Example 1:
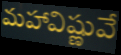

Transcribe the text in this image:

మహావిష్ణువే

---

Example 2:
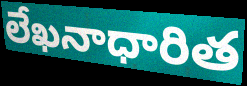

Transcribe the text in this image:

లేఖనాధారిత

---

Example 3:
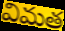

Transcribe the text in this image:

విమత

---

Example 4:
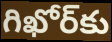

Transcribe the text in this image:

గిఖోర్‌కు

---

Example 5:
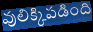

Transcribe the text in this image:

వులిక్కిపడింది